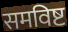
समविष्ट